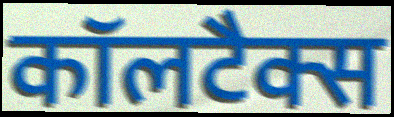
कॉलटैक्स